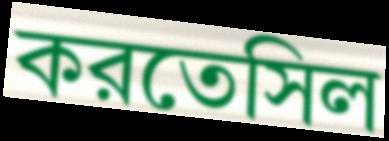
করতেসিল